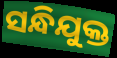
ସନ୍ଧିଯୁକ୍ତ